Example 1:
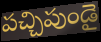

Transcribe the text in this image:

పచ్చిపుండై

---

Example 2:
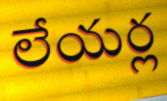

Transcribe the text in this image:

లేయర్ల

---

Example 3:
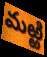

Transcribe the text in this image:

మఱ్ఱి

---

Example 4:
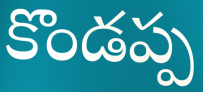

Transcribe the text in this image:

కొండప్ప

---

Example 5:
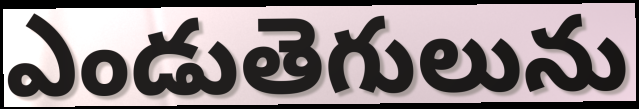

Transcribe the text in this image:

ఎండుతెగులును